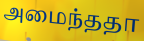
அமைந்ததா